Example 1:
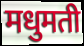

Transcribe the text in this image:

मधुमती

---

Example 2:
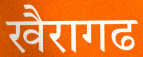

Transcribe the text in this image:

खैरागढ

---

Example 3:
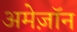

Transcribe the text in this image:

अमेज़ॉन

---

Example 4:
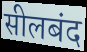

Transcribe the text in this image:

सीलबंद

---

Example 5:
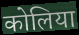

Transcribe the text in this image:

कोलिया